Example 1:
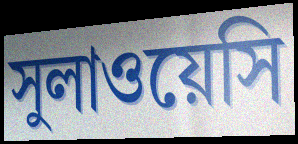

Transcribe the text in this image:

সুলাওয়েসি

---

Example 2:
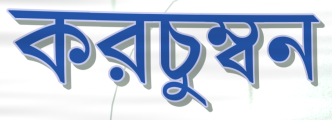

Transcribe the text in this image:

করচুম্বন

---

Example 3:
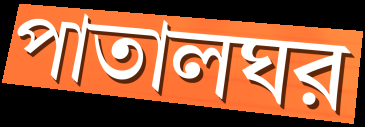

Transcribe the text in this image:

পাতালঘর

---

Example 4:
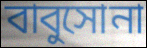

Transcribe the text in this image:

বাবুসোনা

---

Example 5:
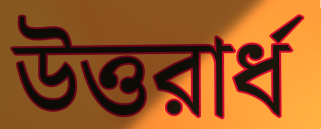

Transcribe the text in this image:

উত্তরার্ধ